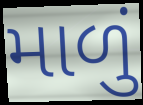
માળું